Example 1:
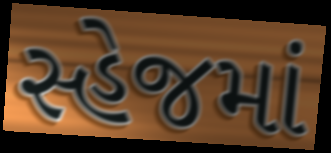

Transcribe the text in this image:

સ્હેજમાં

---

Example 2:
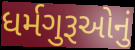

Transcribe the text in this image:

ધર્મગુરૂઓનું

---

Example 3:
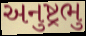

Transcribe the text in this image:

અનુષ્ટ્રભુ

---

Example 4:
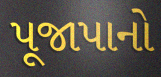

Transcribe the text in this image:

પૂજાપાનો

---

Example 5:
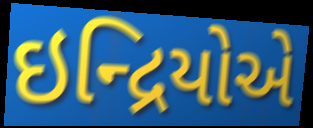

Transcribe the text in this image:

ઇન્દ્રિયોએ